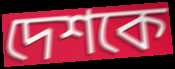
দেশকে